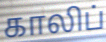
காலிப்